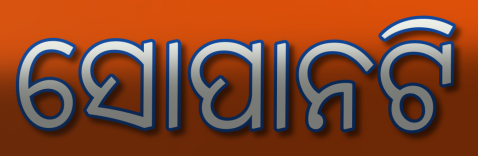
ସୋପାନଟି